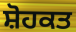
ਸ਼ੋਹਕਤ